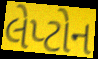
લેપ્ટોન